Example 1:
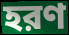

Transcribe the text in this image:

হরণ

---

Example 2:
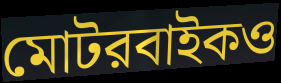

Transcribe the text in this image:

মোটরবাইকও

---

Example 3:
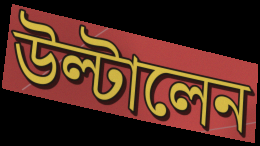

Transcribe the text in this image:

উল্টালেন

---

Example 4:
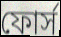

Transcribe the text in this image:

ফোর্স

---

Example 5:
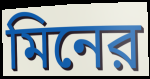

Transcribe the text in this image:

মিনের